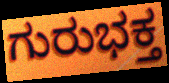
ಗುರುಭಕ್ತ